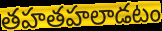
తహతహలాడటం